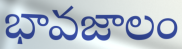
భావజాలం